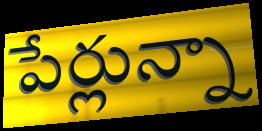
పేర్లున్నా